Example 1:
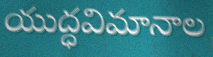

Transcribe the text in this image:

యుద్ధవిమానాల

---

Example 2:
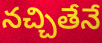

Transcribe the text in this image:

నచ్చితేనే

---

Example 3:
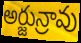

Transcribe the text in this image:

అర్జున్రావు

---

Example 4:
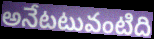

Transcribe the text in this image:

అనేటటువంటిది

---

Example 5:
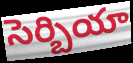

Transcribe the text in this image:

సెర్బియా